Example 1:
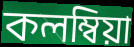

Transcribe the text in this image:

কলম্বিয়া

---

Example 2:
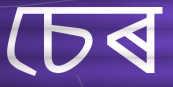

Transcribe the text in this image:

চেৰ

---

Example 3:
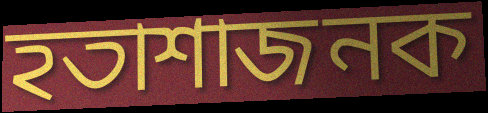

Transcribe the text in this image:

হতাশাজনক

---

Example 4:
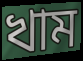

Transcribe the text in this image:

খাম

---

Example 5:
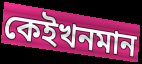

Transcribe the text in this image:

কেইখনমান